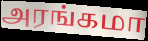
அரங்கமா